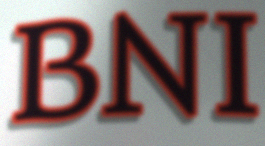
BNI